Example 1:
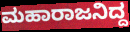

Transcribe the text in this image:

ಮಹಾರಾಜನಿದ್ದ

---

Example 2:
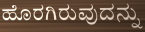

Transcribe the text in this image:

ಹೊರಗಿರುವುದನ್ನು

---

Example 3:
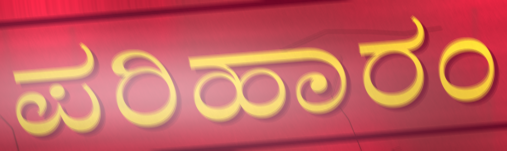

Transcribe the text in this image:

ಪರಿಹಾರಂ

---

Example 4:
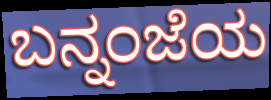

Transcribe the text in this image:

ಬನ್ನಂಜೆಯ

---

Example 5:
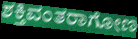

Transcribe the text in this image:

ಶಕ್ತಿವಂತರಾಗೋಣ